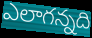
ఎలాగన్నది